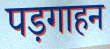
पड़गाहन